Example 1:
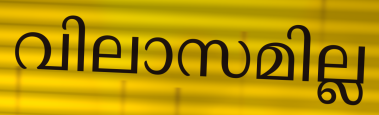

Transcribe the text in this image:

വിലാസമില്ല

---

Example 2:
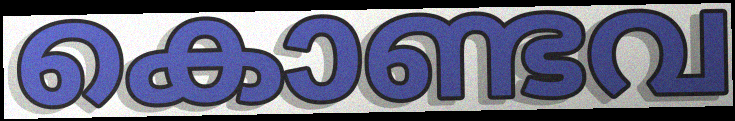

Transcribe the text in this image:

കൊണ്ടവ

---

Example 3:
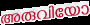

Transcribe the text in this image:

അരുവിയോ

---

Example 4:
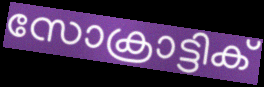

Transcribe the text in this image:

സോക്രാട്ടിക്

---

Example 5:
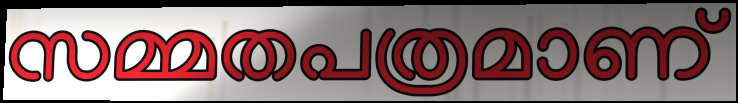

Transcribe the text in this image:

സമ്മതപത്രമാണ്